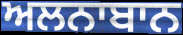
ਅਲਨਾਬਾਨ